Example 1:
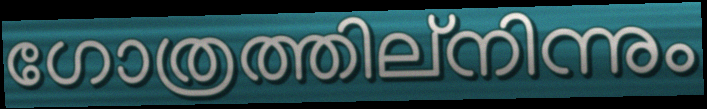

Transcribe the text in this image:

ഗോത്രത്തില്നിന്നും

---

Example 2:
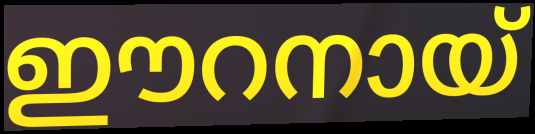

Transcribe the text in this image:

ഈറനായ്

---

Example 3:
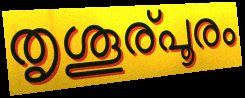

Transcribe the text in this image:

തൃശൂര്പൂരം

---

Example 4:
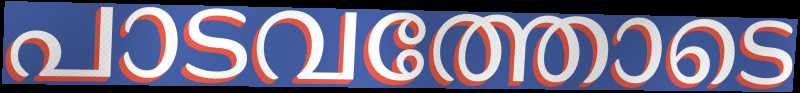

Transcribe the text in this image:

പാടവത്തോടെ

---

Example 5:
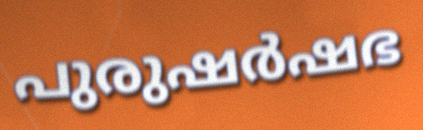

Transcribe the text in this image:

പുരുഷർഷഭ